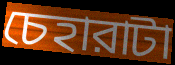
চেহারাটা